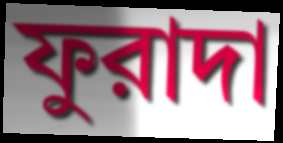
ফুরাদা